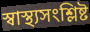
স্বাস্থ্যসংশ্লিষ্ট